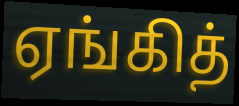
ஏங்கித்